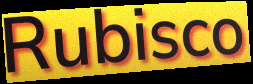
Rubisco